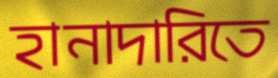
হানাদারিতে